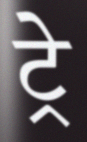
ट्रे